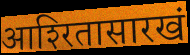
आश्रितासारखं